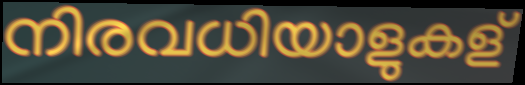
നിരവധിയാളുകള്